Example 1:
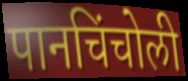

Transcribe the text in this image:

पानचिंचोली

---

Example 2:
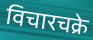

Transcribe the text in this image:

विचारचक्रे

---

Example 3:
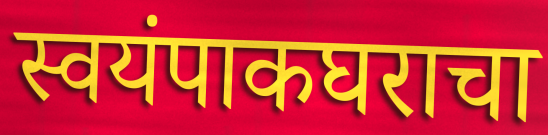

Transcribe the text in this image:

स्वयंपाकघराचा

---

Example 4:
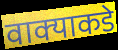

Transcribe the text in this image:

वाक्याकडे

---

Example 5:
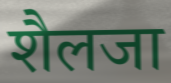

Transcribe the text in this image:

शैलजा